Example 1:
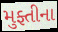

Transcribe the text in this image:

મુફ્તીના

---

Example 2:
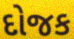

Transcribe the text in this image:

દોજક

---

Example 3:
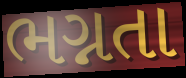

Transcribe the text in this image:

ભગ્નતા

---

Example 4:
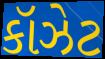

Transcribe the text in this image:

કૉઝેટ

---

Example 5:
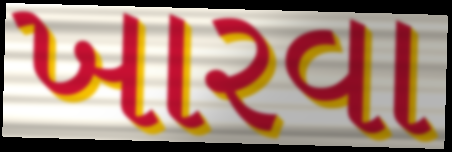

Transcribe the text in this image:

ખારવા